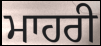
ਮਾਹਰੀ